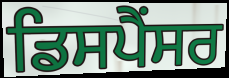
ਡਿਸਪੈਂਸਰ